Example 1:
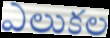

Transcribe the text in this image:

ఎలుకల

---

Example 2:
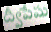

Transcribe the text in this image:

ద్వీపేషు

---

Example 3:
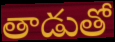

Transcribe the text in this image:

తాడుతో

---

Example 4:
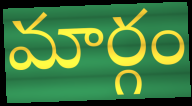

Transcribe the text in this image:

మార్గం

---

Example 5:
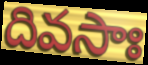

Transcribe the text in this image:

దివసాః